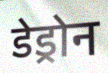
डेड्रोन